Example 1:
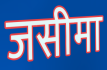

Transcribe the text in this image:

जसीमा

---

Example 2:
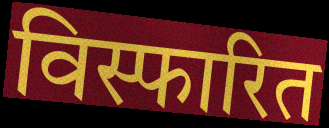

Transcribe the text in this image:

विस्फारित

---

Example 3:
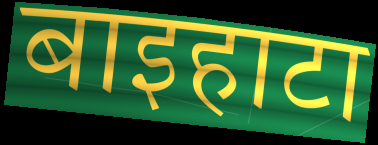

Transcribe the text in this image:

बाइहाटा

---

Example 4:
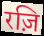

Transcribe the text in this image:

रज़ि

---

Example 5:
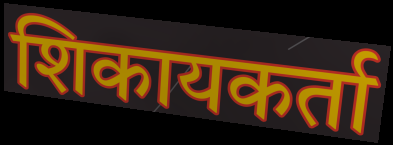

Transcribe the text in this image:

शिकायकर्ता